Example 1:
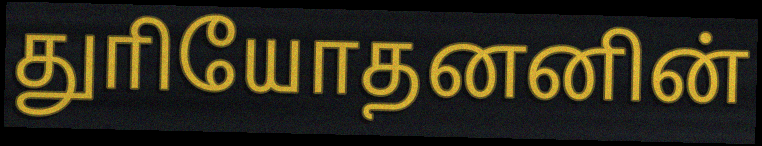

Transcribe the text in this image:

துரியோதனனின்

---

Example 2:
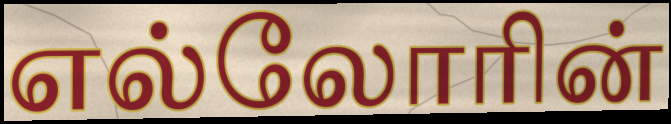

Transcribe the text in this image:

எல்லோரின்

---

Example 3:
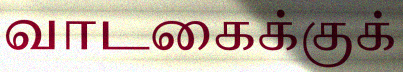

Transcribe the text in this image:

வாடகைக்குக்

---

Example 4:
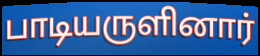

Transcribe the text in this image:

பாடியருளினார்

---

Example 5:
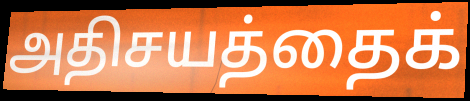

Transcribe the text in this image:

அதிசயத்தைக்